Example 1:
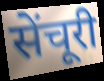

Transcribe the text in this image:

सेंचूरी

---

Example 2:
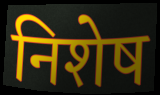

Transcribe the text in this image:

निशेष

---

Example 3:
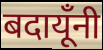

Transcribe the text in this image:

बदायूँनी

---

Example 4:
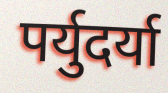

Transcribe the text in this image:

पर्युदर्या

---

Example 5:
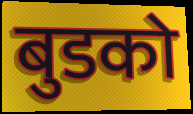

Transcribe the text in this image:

बुडको